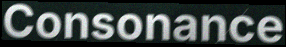
Consonance